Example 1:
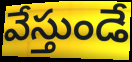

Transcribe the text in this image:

వేస్తుండే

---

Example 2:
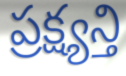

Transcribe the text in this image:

ప్రక్ష్యన్తి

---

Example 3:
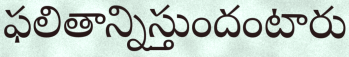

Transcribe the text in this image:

ఫలితాన్నిస్తుందంటారు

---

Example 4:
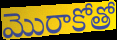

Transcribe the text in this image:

మొరాకోతో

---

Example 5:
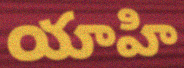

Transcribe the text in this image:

యాహి